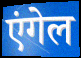
एंगेल